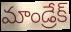
మాండ్రేక్